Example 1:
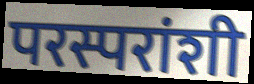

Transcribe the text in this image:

परस्परांशी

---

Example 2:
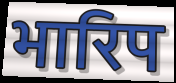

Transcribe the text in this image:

भारिप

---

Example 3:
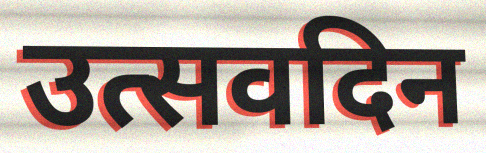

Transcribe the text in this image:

उत्सवदिन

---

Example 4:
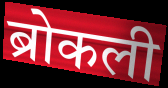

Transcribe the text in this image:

ब्रोकली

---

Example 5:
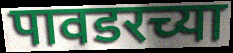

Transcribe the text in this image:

पावडरच्या